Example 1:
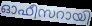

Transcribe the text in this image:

ഓഫീസറായി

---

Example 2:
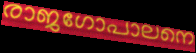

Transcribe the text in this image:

രാജഗോപാലനെ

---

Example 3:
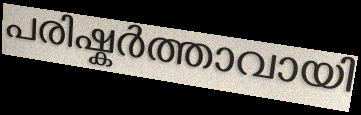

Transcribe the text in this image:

പരിഷ്കർത്താവായി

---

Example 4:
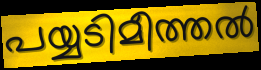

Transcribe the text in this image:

പയ്യടിമീത്തൽ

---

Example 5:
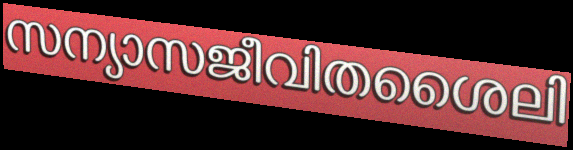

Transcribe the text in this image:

സന്യാസജീവിതശൈലി